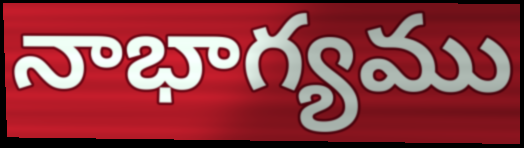
నాభాగ్యము